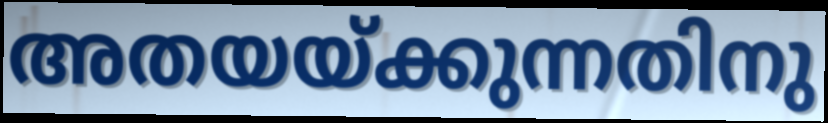
അതയയ്ക്കുന്നതിനു